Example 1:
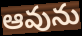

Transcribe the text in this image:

ఆవును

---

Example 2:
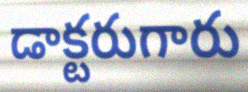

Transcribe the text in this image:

డాక్టరుగారు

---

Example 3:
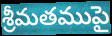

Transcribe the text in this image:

శ్రీమతముపై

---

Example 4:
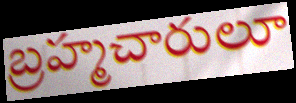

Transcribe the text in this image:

బ్రహ్మచారులూ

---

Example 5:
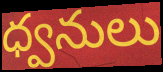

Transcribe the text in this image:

ధ్వనులు